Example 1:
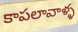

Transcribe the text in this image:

కాపలావాళ్ళ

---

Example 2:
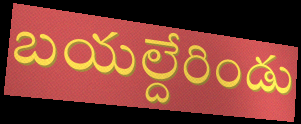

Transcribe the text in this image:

బయల్దేరిండు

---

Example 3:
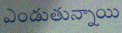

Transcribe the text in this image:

ఎండుతున్నాయి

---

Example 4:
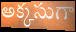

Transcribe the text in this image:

అక్కసుగా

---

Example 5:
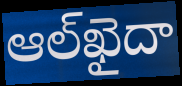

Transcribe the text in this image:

ఆల్‌ఖైదా